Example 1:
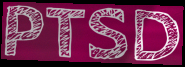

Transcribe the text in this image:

PTSD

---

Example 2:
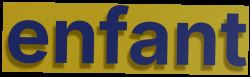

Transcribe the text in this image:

enfant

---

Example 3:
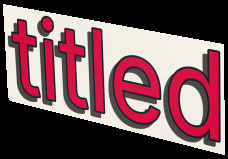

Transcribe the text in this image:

titled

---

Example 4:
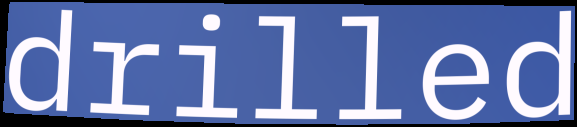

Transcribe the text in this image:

drilled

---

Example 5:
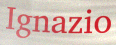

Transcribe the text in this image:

Ignazio